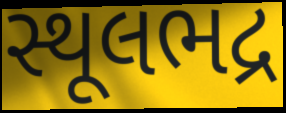
સ્થૂલભદ્ર